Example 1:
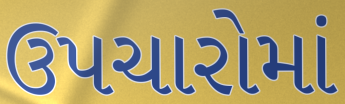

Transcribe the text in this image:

ઉપચારોમાં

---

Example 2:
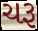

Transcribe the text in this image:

ચરૂ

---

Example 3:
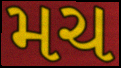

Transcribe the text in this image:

મચ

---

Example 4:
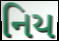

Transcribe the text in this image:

નિય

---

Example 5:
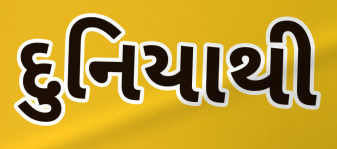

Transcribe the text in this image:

દુનિયાથી